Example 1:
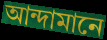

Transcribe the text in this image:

আন্দামানে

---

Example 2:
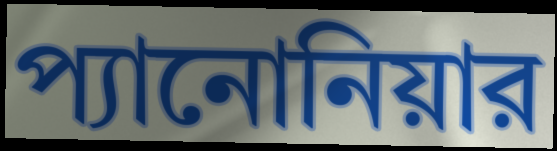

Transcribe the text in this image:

প্যানোনিয়ার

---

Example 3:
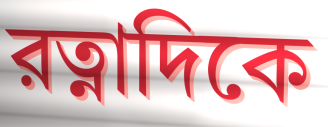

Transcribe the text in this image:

রত্নাদিকে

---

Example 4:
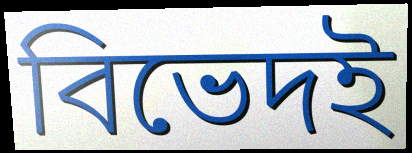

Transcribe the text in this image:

বিভেদই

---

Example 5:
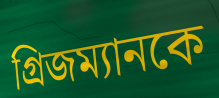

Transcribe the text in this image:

গ্রিজম্যানকে